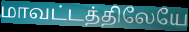
மாவட்டத்திலேயே